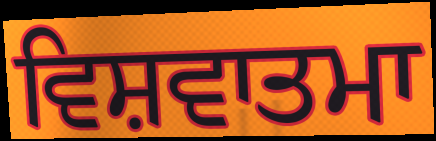
ਵਿਸ਼ਵਾਤਮਾ